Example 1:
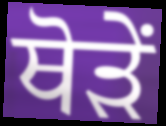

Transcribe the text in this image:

ਥੋੜੇਂ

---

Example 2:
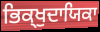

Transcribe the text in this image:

ਭਿਕ੍ਖੁਦਾਯਿਕਾ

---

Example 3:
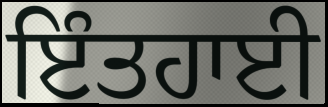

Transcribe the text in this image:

ਇੰਤਹਾਈ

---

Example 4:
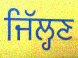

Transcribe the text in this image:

ਜਿੱਲ੍ਹਣ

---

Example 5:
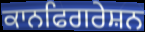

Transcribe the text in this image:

ਕਾਨਫਿਗਰੇਸ਼ਨ